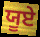
ਯੂਏ